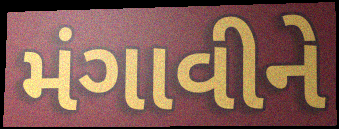
મંગાવીને